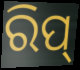
ରିପ୍